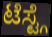
ಟೆಸ್ಟ್ಗೆ